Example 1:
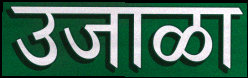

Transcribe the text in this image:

उजाळा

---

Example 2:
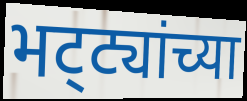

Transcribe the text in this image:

भट्ट्यांच्या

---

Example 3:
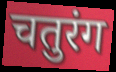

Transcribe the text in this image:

चतुरंग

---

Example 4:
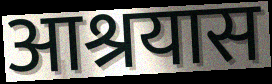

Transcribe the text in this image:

आश्रयास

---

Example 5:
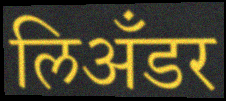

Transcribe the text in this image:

लिअँडर